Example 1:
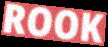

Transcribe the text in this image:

ROOK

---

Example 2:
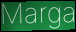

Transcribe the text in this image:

Marga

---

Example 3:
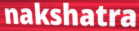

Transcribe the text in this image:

nakshatra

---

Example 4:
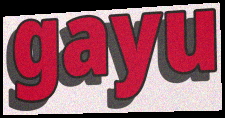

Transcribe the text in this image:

gayu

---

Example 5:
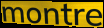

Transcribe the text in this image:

montre